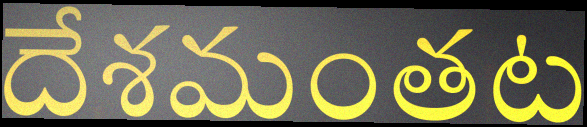
దేశమంతట